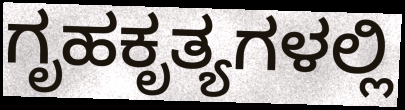
ಗೃಹಕೃತ್ಯಗಳಲ್ಲಿ